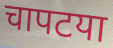
चापटया